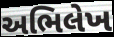
અભિલેખ